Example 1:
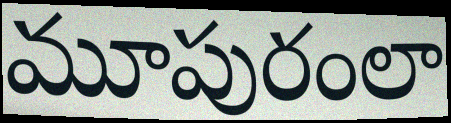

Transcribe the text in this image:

మూపురంలా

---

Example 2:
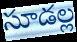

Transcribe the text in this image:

సూడల్ల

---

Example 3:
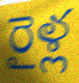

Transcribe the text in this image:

రైళ్ల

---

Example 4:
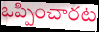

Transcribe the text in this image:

ఒప్పించారట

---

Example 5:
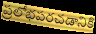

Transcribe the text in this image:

ప్రలోభపరచడానికి